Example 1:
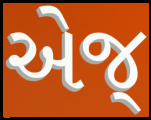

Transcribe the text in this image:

એજ્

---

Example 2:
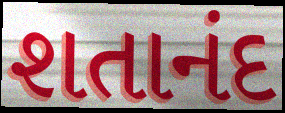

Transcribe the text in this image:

શતાનંદ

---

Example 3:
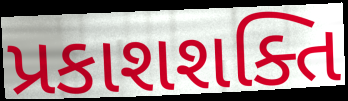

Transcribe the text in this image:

પ્રકાશશક્તિ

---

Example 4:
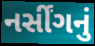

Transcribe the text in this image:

નર્સીંગનું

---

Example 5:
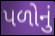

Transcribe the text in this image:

પળોનું